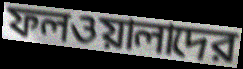
ফলওয়ালাদের